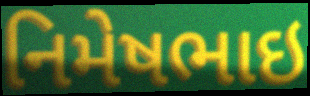
નિમેષભાઇ